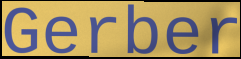
Gerber